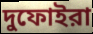
দুফোইরা